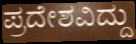
ಪ್ರದೇಶವಿದ್ದು